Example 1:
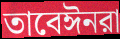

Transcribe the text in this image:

তাবেঈনরা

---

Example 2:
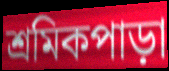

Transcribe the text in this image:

শ্রমিকপাড়া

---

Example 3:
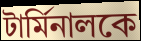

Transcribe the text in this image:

টার্মিনালকে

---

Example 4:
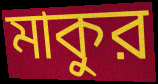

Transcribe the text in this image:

মাকুর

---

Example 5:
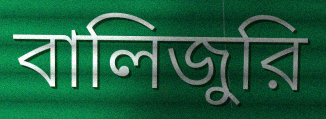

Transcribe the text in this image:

বালিজুরি